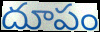
దూపం